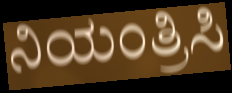
ನಿಯಂತ್ರಿಸಿ